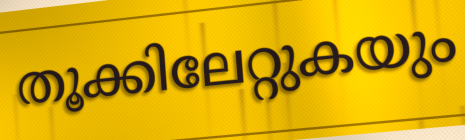
തൂക്കിലേറ്റുകയും